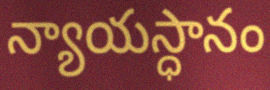
న్యాయస్ధానం